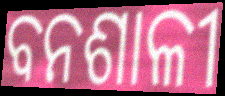
ବନଶାଳୀ